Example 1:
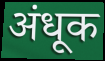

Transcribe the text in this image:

अंधूक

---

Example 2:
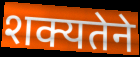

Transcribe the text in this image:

शक्यतेने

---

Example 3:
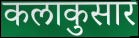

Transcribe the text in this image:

कलाकुसार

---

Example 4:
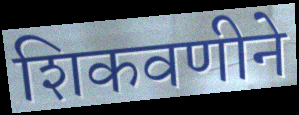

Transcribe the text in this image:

शिकवणीने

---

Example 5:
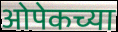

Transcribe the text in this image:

ओपेकच्या